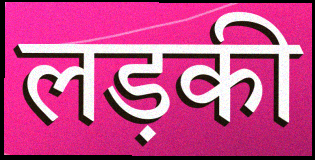
लड़की